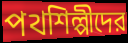
পথশিল্পীদের